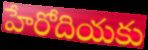
హేరోదియకు